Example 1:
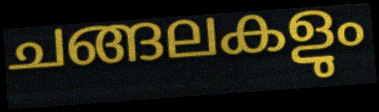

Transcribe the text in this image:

ചങ്ങലകളും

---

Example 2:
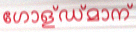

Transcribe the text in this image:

ഗോള്ഡ്മാന്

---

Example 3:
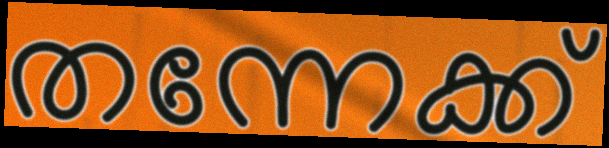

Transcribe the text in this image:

തന്നേക്ക്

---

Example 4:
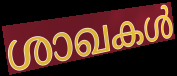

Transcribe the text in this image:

ശാഖകൾ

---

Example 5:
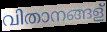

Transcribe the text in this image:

വിതാനങ്ങള്